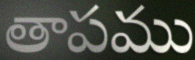
తాపము